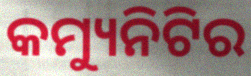
କମ୍ୟୁନିଟିର